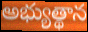
అభ్యుత్థాన